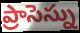
ప్రాసెస్ను